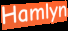
Hamlyn